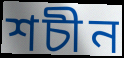
শচীন